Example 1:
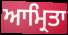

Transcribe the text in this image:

ਆਮ੍ਰਿਤਾ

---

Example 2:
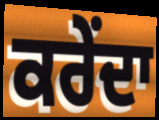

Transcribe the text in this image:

ਕਰੇਂਦਾ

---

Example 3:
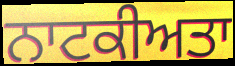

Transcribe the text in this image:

ਨਾਟਕੀਅਤਾ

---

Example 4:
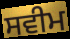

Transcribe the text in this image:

ਸਵੀਮ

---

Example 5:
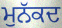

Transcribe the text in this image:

ਮੁਨੱਕਦ